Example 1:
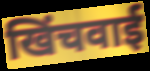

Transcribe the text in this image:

खिंचवाई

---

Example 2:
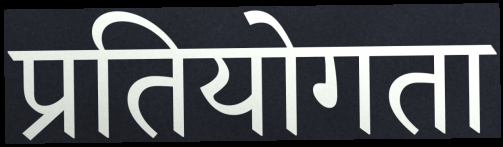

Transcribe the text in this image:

प्रतियोगता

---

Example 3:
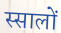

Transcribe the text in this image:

स्सालों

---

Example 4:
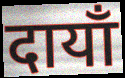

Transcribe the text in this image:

दायाँ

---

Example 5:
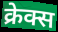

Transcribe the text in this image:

क्रेक्स